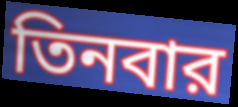
তিনবার